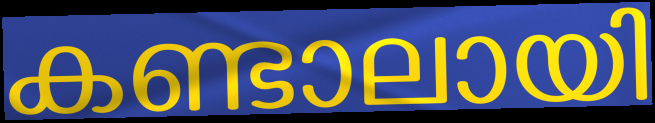
കണ്ടാലായി